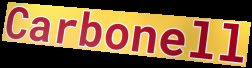
Carbonell